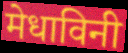
मेधाविनी